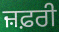
ਜ਼ਫ਼ਰੀ